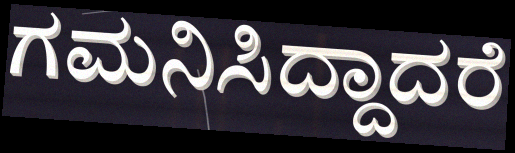
ಗಮನಿಸಿದ್ದಾದರೆ